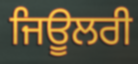
ਜਿਊਲਰੀ